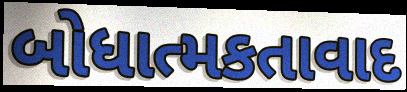
બોધાત્મકતાવાદ